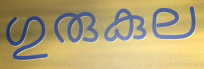
ഗുരുകുല